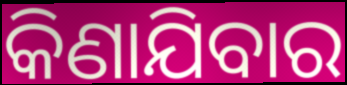
କିଣାଯିବାର